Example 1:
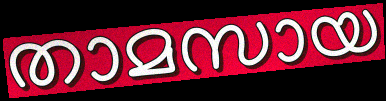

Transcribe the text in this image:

താമസായ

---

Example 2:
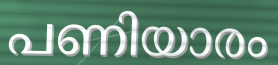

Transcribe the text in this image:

പണിയാരം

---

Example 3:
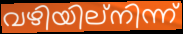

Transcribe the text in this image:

വഴിയില്നിന്ന്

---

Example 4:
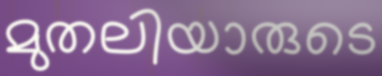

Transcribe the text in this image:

മുതലിയാരുടെ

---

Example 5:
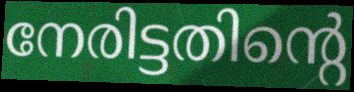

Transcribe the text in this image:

നേരിട്ടതിന്റെ